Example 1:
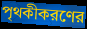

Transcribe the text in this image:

পৃথকীকরণের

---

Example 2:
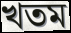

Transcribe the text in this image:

খতম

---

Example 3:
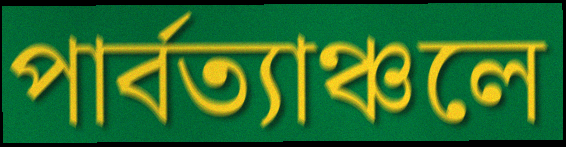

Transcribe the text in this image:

পার্বত্যাঞ্চলে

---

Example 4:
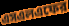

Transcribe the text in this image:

এসএলএফের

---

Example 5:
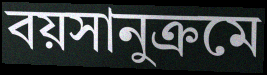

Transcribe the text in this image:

বয়সানুক্রমে